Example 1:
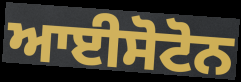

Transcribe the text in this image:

ਆਈਸੋਟੋਨ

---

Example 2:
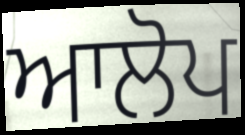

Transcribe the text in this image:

ਆਲੋਪ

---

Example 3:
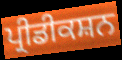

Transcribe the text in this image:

ਪ੍ਰੀਡੀਕਸ਼ਨ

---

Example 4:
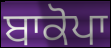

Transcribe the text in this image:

ਬਾਕੋਪਾ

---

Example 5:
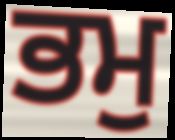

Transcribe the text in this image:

ਭਮੁ